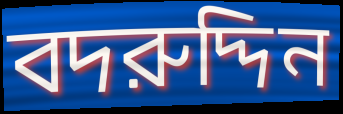
বদরুদ্দিন